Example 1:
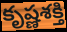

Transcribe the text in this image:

కృష్ణశక్తి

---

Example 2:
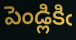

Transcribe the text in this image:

పెండ్లికిఁ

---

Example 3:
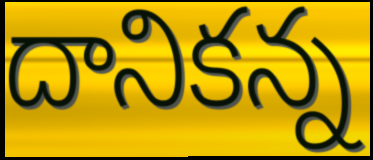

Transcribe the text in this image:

దానికన్న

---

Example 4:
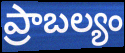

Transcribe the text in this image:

ప్రాబల్యం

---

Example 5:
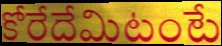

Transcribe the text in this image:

కోరేదేమిటంటే